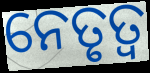
ନେତୃତ୍ଵ